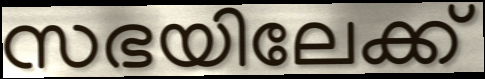
സഭയിലേക്ക്